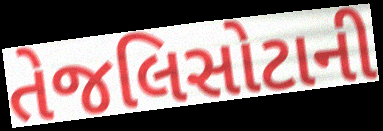
તેજલિસોટાની